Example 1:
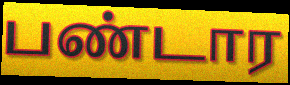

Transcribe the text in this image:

பண்டார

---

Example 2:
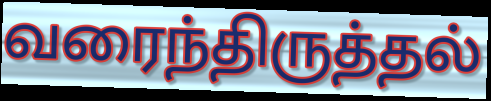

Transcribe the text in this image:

வரைந்திருத்தல்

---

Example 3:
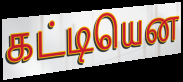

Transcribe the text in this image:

கட்டியென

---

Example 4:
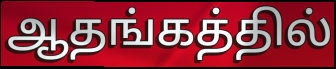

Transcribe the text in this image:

ஆதங்கத்தில்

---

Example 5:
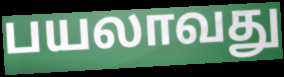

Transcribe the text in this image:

பயலாவது